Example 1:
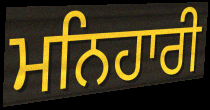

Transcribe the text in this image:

ਮਨਿਹਾਰੀ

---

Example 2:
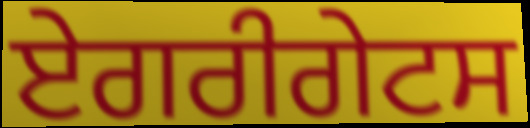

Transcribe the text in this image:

ਏਗਰੀਗੇਟਸ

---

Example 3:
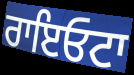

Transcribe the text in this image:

ਰਾਇਓਟਾ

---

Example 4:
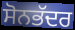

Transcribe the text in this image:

ਸੋਨਭੱਦਰ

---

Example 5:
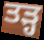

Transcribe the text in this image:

ਤੜ੍ਹ